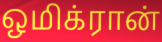
ஒமிக்ரான்